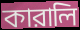
কারালি